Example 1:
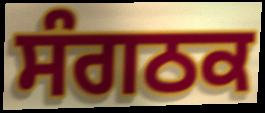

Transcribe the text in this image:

ਸੰਗਠਕ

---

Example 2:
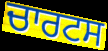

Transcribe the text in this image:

ਚਾਰਟਸ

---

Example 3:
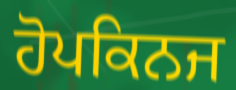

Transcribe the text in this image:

ਹੋਪਕਿਨਜ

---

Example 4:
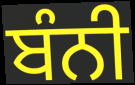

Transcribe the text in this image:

ਬੰਨੀ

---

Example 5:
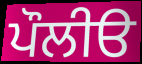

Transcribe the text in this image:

ਪੌਲੀੳ